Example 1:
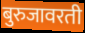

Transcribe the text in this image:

बुरुजावरती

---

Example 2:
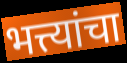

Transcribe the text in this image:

भत्त्यांचा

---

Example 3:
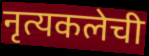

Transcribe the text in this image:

नृत्यकलेची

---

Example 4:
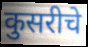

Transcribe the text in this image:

कुसरीचे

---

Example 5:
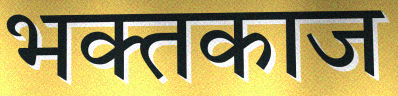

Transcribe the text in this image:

भक्तकाज